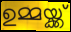
ഉമ്മയ്ക്ക്